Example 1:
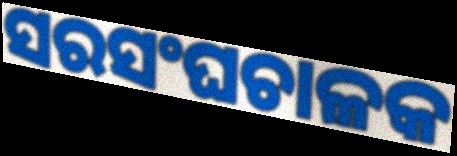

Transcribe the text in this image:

ସରସଂଘଚାଳକ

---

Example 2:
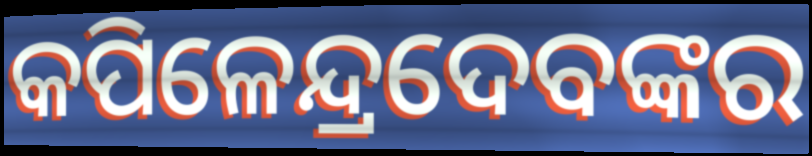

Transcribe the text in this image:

କପିଳେନ୍ଦ୍ରଦେବଙ୍କର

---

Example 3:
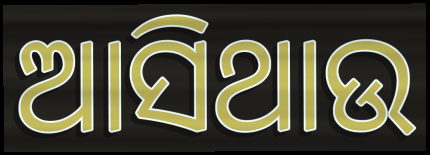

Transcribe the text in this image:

ଆସିଥାଉ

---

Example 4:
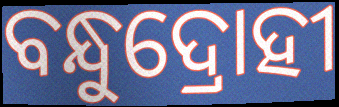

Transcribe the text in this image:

ବନ୍ଧୁଦ୍ରୋହୀ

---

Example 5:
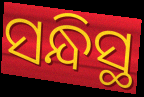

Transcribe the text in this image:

ସନ୍ଧିସ୍ଥ